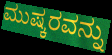
ಮುಷ್ಕರವನ್ನು